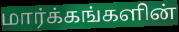
மார்க்கங்களின்